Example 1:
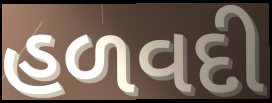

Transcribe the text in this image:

હળવદી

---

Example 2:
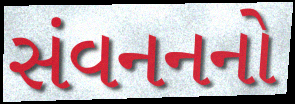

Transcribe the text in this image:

સંવનનનો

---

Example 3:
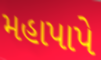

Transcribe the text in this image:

મહાપાપે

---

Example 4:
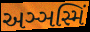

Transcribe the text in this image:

અઞ્ઞસ્મિં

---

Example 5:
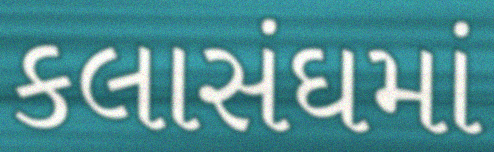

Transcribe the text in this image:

કલાસંઘમાં